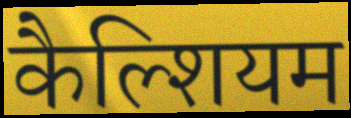
कैल्शियम